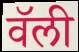
वॅली